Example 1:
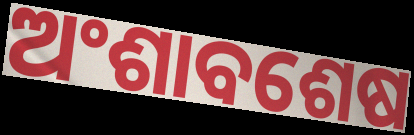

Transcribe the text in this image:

ଅଂଶାବଶେଷ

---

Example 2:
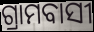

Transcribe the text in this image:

ଗ୍ରାମବାସୀ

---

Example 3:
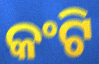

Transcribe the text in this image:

କଂଟି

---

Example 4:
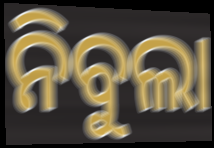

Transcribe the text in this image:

ନିବୁଲା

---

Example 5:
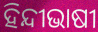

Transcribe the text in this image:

ହିନ୍ଦୀଭାଷୀ